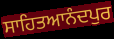
ਸਾਹਿਤਆਨੰਦਪੁਰ